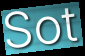
Sot